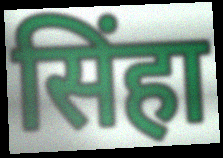
सिंहा